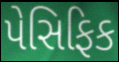
પેસિફિક